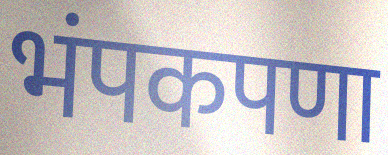
भंपकपणा